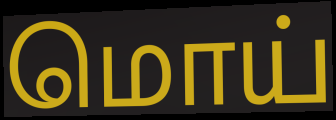
மொய்